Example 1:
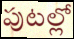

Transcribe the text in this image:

పుటల్లో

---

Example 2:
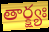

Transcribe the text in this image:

తార్క్ష్యః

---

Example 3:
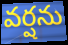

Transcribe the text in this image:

వర్షను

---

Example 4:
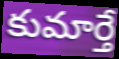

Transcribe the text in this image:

కుమార్తే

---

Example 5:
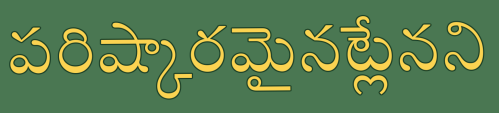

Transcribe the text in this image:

పరిష్కారమైనట్లేనని